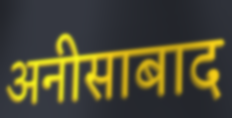
अनीसाबाद